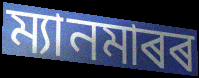
ম্যানমাৰৰ